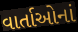
વાર્તાઓનાં